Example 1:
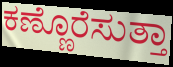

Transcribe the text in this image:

ಕಣ್ಣೊರೆಸುತ್ತಾ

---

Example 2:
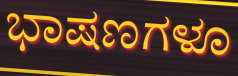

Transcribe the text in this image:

ಭಾಷಣಗಳೂ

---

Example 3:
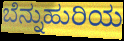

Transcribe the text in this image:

ಬೆನ್ನುಹುರಿಯ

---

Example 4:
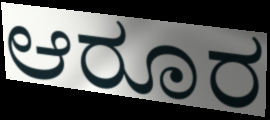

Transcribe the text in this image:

ಆರೂರ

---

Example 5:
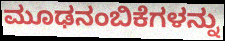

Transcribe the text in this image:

ಮೂಢನಂಬಿಕೆಗಳನ್ನು